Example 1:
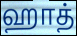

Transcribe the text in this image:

ஹாத்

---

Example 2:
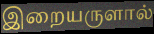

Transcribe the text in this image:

இறையருளால்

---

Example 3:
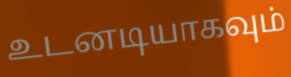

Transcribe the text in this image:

உடனடியாகவும்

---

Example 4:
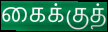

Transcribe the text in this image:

கைக்குத்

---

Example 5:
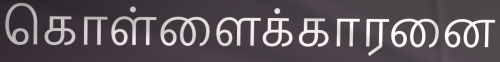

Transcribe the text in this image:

கொள்ளைக்காரனை